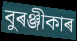
বুৰঞ্জীকাৰ